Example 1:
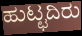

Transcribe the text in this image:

ಹುಟ್ಟದಿರು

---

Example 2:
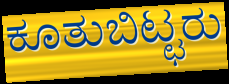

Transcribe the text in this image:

ಕೂತುಬಿಟ್ಟರು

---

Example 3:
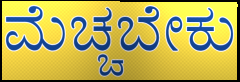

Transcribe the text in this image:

ಮೆಚ್ಚಬೇಕು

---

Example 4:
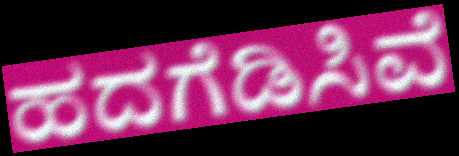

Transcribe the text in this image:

ಹದಗೆಡಿಸಿವೆ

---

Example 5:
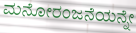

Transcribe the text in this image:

ಮನೋರಂಜನೆಯನ್ನೇ